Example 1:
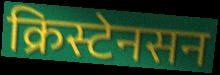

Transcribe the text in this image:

क्रिस्टेनसन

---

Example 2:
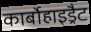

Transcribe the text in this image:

कार्बोहाइड्रैट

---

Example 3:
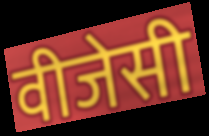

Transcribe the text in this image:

वीजेसी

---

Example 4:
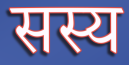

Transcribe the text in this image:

सस्य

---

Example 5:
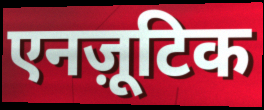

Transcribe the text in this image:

एनज़ूटिक